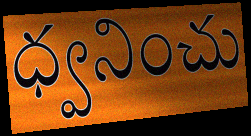
ధ్వనించు